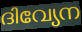
ദിവ്യേന